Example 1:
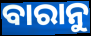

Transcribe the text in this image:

ବାରାନୁ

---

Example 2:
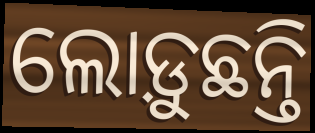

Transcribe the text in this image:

ଲୋଡ଼ୁଛନ୍ତି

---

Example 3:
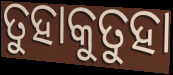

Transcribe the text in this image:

ତୁହାକୁତୁହା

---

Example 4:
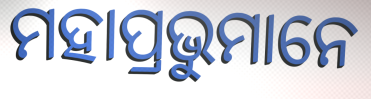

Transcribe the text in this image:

ମହାପ୍ରଭୁମାନେ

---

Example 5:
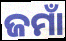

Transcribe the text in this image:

ଜମାଁ